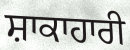
ਸ਼ਾਕਾਹਾਰੀ